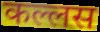
कल्लस